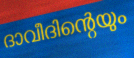
ദാവീദിന്റെയും